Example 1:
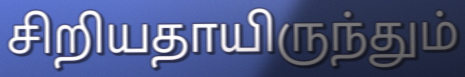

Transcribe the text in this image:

சிறியதாயிருந்தும்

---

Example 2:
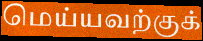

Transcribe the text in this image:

மெய்யவற்குக்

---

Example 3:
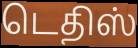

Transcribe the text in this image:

டெதிஸ்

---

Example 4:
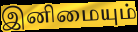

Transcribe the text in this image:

இனிமையும்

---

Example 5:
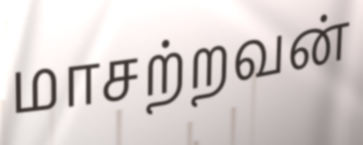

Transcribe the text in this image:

மாசற்றவன்